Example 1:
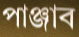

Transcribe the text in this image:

পাঞ্জাব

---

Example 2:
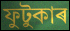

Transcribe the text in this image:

ফুটুকাৰ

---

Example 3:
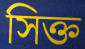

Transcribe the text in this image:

সিক্ত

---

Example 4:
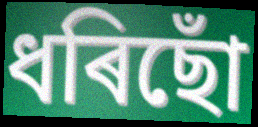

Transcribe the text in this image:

ধৰিছোঁ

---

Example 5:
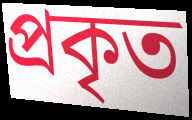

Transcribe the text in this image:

প্ৰকৃত